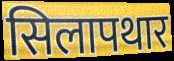
सिलापथार